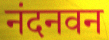
नंदनवन